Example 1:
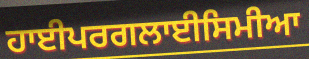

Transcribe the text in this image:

ਹਾਈਪਰਗਲਾਈਸਿਮੀਆ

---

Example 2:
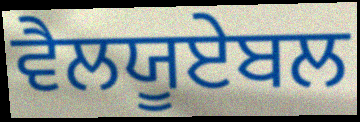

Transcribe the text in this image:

ਵੈਲਯੂਏਬਲ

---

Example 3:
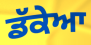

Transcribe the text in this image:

ਡੱਕੇਆ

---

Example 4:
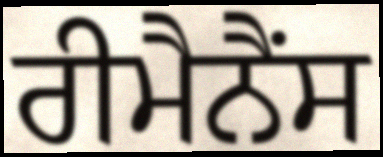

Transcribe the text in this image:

ਰੀਮੈਨੈਂਸ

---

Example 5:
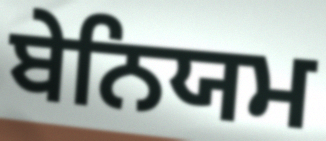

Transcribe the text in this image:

ਬੇਨਿਯਮ